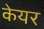
केयर